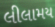
લીલામય